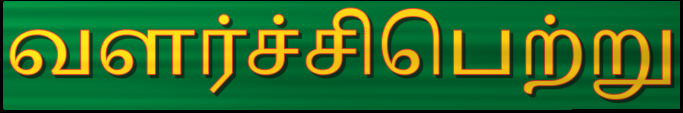
வளர்ச்சிபெற்று